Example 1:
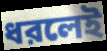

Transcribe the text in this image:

ধরলেই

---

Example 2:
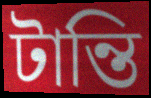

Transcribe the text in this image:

টান্তি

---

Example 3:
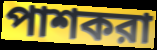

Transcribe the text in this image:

পাশকরা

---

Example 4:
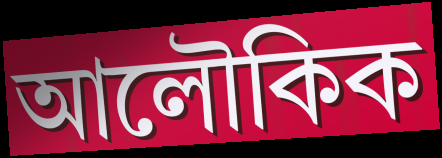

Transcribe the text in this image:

আলৌকিক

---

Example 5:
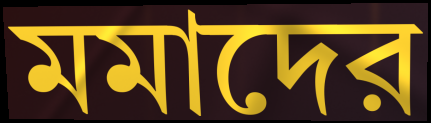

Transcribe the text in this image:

মমাদের